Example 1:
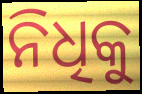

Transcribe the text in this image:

ନିଧିକୁ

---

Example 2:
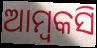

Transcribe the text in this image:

ଆମ୍ବକସି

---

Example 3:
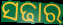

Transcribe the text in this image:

ସଢାର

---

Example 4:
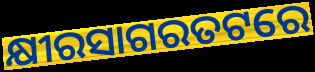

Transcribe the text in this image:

କ୍ଷୀରସାଗରତଟରେ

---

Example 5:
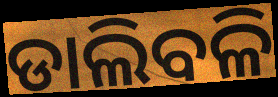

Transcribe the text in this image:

ଡାଲିବଳି